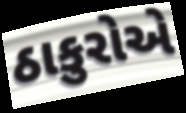
ઠાકુરોએ